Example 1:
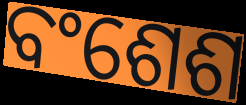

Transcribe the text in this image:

ବଂଶେଶ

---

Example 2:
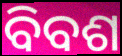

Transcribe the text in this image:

ବିବଶ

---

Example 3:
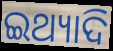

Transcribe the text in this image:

ଇଥ୍ୟାଦି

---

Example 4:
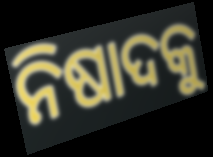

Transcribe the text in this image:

ନିଷାଦକୁ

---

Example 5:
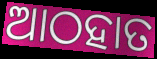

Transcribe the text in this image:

ଆଠହାତ